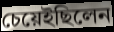
চেয়েইছিলেন